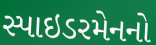
સ્પાઇડરમેનનો